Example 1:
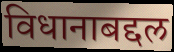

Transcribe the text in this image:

विधानाबद्दल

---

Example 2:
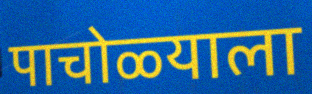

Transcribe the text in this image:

पाचोळ्याला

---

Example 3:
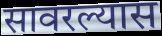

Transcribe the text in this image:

सावरल्यास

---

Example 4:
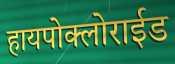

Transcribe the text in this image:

हायपोक्लोराईड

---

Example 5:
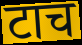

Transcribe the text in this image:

टाच